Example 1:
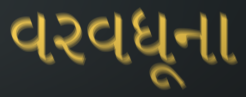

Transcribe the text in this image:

વરવધૂના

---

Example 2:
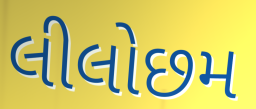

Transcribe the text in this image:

લીલોછમ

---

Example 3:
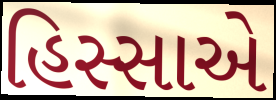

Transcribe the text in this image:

હિસ્સાએ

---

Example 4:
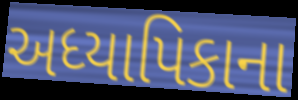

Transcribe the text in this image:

અધ્યાપિકાના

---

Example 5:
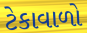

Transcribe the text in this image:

ટેકાવાળો